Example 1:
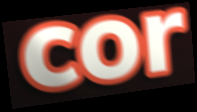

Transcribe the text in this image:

cor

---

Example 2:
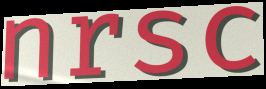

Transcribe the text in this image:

nrsc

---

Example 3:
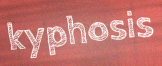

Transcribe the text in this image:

kyphosis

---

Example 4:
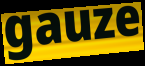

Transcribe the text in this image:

gauze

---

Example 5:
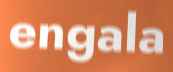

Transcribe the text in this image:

engala